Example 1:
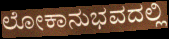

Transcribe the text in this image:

ಲೋಕಾನುಭವದಲ್ಲಿ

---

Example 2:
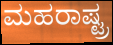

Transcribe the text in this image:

ಮಹರಾಷ್ಟ್ರ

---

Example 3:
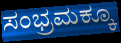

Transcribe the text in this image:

ಸಂಭ್ರಮಕ್ಕೂ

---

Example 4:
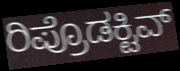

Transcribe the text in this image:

ರಿಪ್ರೊಡಕ್ಟಿವ್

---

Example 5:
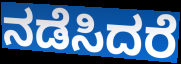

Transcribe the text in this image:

ನಡೆಸಿದರೆ